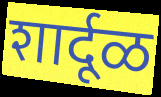
शार्दूळ